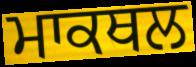
ਮਾਕਥਲ